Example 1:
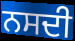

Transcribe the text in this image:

ਨਸਦੀ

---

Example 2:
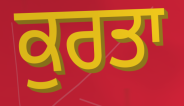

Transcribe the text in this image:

ਕੁਰਤਾ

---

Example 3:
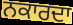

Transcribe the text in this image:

ਨਕਾਰਦਾ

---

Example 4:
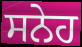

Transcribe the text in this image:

ਸਨੇਹ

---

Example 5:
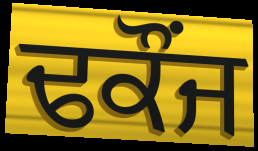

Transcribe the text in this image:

ਢਕੌਂਜ